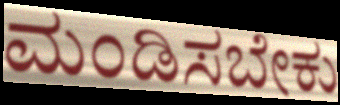
ಮಂಡಿಸಬೇಕು